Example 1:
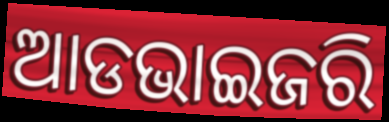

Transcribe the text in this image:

ଆଡଭାଇଜରି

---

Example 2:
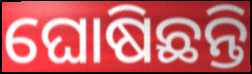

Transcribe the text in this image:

ଘୋଷିଛନ୍ତି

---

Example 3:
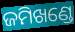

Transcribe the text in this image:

ଜମିଖଣ୍ଡେ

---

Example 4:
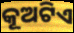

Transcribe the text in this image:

କୂଅଟିଏ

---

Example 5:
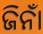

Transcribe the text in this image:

ଜିନାଁ